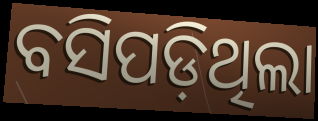
ବସିପଡ଼ିଥିଲା